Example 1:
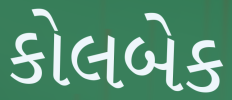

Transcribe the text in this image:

કોલબેક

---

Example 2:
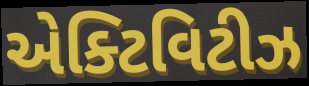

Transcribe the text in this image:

એક્ટિવિટીઝ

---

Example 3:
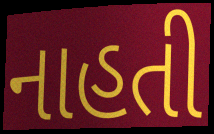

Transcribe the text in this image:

નાહતી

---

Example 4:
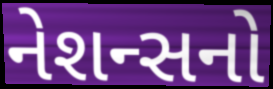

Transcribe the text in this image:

નેશન્સનો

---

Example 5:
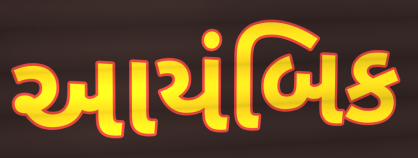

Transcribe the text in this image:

આયંબિક